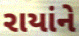
રાયાંને